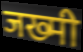
जख्मी